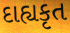
દાહ્યકૃત